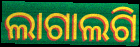
ଲାଗାଲଗି